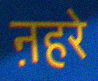
ऩहरे